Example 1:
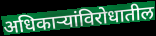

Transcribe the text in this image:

अधिकाऱ्यांविरोधातील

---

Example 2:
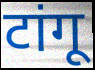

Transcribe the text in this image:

टांगू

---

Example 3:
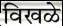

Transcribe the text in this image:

विखळे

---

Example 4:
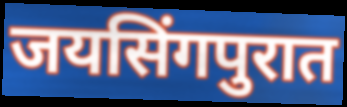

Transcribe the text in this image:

जयसिंगपुरात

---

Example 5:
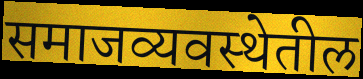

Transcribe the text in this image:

समाजव्यवस्थेतील